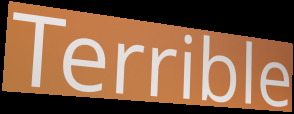
Terrible